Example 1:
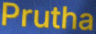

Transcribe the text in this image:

Prutha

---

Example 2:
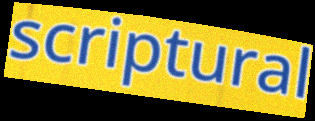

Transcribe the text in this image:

scriptural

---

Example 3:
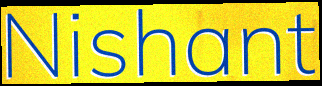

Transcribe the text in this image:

Nishant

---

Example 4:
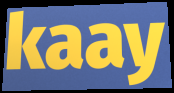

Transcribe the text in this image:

kaay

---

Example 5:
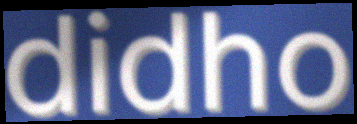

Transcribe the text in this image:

didho